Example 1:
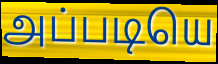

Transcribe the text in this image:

அப்படியெ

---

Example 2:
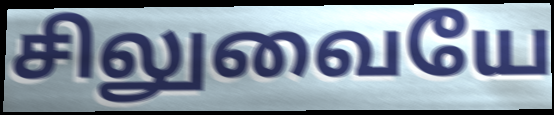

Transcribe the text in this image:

சிலுவையே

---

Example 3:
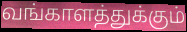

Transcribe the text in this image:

வங்காளத்துக்கும்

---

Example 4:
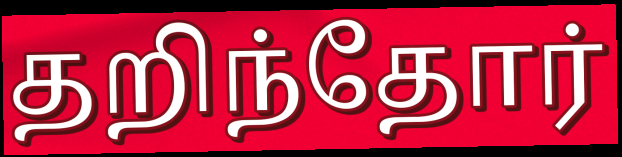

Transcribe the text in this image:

தறிந்தோர்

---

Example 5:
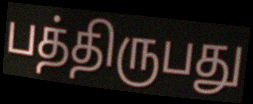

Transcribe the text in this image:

பத்திருபது